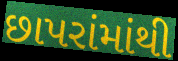
છાપરાંમાંથી